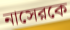
নাসেরকে